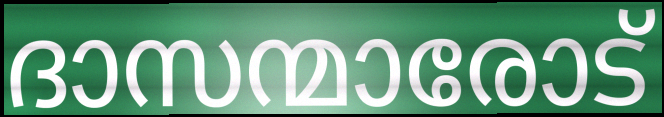
ദാസന്മാരോട്